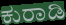
ಕುರಾಡಿ